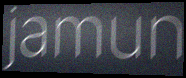
jamun